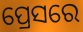
ପ୍ରେସରେ